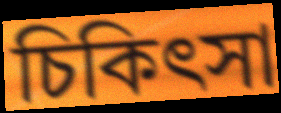
চিকিৎসা